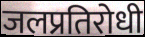
जलप्रतिरोधी